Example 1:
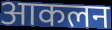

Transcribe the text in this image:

आकलन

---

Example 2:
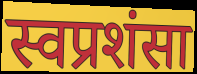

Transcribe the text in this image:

स्वप्रशंसा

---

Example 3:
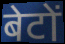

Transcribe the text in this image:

बेटों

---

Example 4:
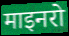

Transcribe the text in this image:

माइनरो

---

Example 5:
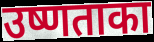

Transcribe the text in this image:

उष्णताका